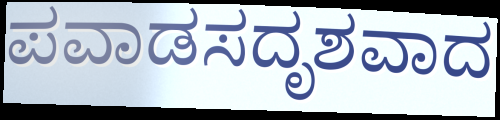
ಪವಾಡಸದೃಶವಾದ